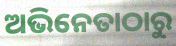
ଅଭିନେତାଠାରୁ